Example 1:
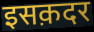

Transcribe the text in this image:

इसक़दर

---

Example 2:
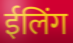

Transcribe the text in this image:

ईलिंग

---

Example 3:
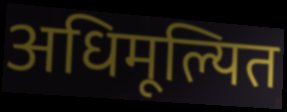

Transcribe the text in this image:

अधिमूल्यित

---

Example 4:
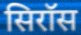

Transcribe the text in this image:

सिरॉस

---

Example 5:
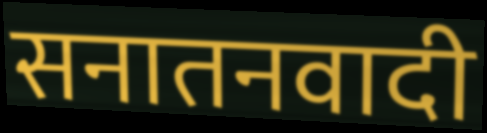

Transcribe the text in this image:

सनातनवादी